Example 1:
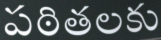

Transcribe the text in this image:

పఠితలకు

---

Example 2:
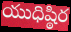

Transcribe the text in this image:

యుధిష్ఠిర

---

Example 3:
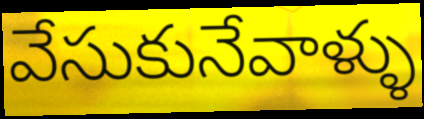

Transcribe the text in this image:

వేసుకునేవాళ్ళు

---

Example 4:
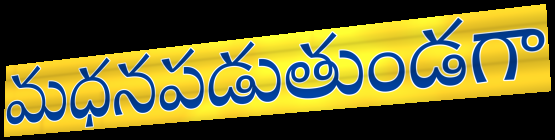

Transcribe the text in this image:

మధనపడుతుండగా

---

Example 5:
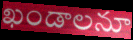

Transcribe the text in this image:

ఖండాలనూ